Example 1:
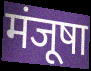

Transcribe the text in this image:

मंजूषा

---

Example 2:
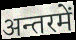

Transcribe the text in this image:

अन्तरमें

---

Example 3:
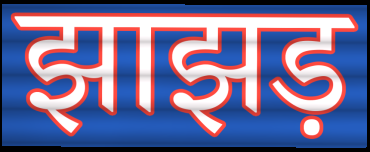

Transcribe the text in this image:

झाझड़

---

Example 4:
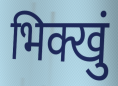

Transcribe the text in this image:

भिक्खुं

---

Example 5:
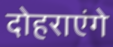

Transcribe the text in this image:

दोहराएंगे